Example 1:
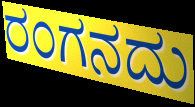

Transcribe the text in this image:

ರಂಗನದು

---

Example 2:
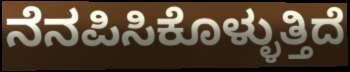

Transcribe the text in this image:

ನೆನಪಿಸಿಕೊಳ್ಳುತ್ತಿದೆ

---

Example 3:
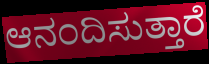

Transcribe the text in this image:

ಆನಂದಿಸುತ್ತಾರೆ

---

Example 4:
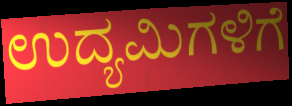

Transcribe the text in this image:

ಉದ್ಯಮಿಗಳಿಗೆ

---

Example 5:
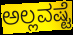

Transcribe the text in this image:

ಅಲ್ಲವಷ್ಟೆ